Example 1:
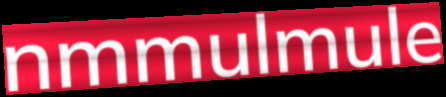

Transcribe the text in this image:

nmmulmule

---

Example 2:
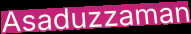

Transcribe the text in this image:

Asaduzzaman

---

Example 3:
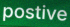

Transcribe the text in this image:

postive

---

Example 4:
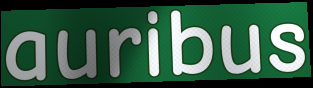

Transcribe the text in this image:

auribus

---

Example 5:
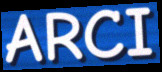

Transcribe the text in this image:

ARCI